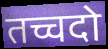
तच्चदो